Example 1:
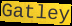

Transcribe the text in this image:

Gatley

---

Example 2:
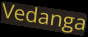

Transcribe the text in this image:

Vedanga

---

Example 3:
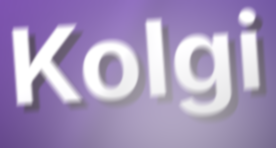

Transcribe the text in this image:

Kolgi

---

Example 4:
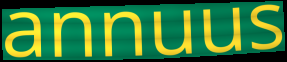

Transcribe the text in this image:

annuus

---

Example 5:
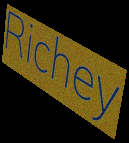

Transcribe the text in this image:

Richey